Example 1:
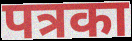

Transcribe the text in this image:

पत्रका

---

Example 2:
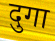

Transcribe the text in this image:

दुगा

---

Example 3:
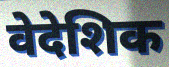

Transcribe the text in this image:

वेदेशिक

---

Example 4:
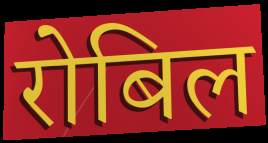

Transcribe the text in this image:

रोबिल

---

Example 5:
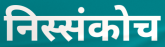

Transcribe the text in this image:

निस्संकोच